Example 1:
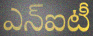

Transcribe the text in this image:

ఎన్ఐటీ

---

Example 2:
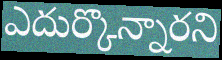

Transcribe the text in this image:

ఎదుర్కొన్నారని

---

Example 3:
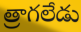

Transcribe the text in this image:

త్రాగలేడు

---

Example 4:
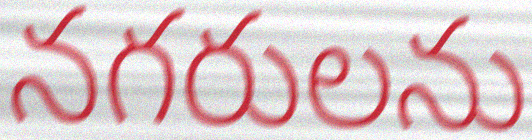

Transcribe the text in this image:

నగరులను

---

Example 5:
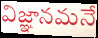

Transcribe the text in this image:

విజ్ఞానమనే